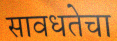
सावधतेचा